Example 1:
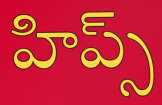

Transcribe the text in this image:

హిప్స్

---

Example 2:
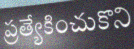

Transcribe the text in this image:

ప్రత్యేకించుకొని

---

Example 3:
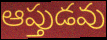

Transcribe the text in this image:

ఆప్తుడవు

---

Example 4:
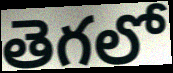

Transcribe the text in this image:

తెగలో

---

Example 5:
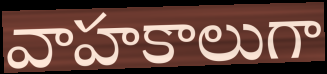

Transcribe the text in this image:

వాహకాలుగా